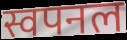
स्वपनल